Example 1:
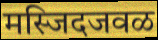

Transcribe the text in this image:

मस्जिदजवळ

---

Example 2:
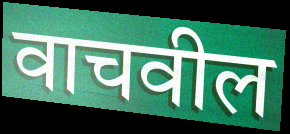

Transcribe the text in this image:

वाचवील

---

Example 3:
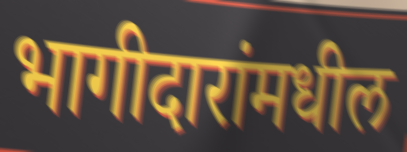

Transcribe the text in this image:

भागीदारांमधील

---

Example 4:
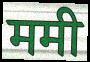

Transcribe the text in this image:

ममी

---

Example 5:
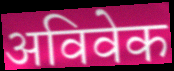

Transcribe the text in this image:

अविवेक